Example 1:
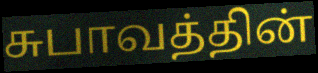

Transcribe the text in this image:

சுபாவத்தின்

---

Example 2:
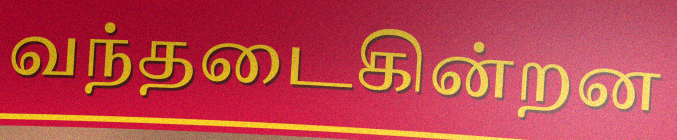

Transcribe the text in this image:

வந்தடைகின்றன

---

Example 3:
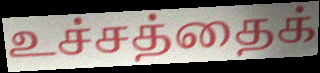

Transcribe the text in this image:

உச்சத்தைக்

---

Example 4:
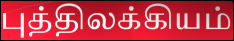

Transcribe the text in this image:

புத்திலக்கியம்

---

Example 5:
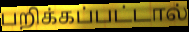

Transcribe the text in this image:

பறிக்கப்பட்டால்